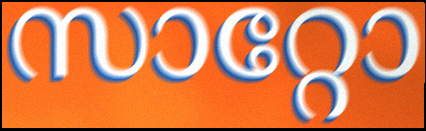
സാറ്റോ